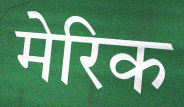
मेरिक